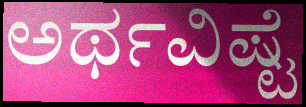
ಅರ್ಥವಿಷ್ಟೆ